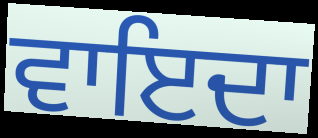
ਵਾਇਦਾ